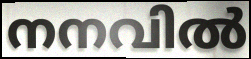
നനവിൽ